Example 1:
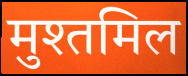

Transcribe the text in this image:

मुश्तमिल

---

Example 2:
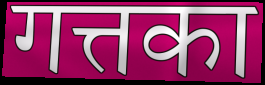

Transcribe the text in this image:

गत्तका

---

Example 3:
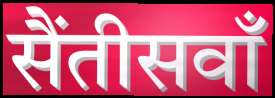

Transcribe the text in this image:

सैंतीसवाँ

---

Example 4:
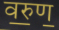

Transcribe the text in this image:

व॒रु॒ण॒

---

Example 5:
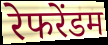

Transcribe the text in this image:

रेफरेंडम